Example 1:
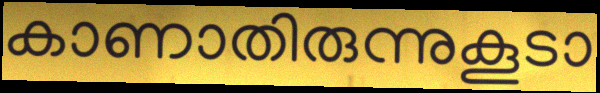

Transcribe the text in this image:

കാണാതിരുന്നുകൂടാ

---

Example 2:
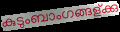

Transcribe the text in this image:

കുടുംബാംഗങ്ങള്ക്കു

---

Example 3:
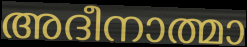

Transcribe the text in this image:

അദീനാത്മാ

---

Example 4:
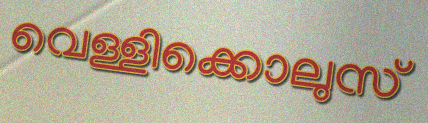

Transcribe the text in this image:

വെള്ളിക്കൊലുസ്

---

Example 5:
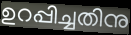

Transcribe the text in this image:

ഉറപ്പിച്ചതിനു